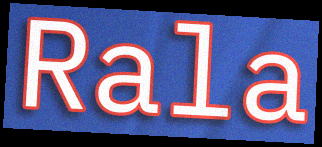
Rala